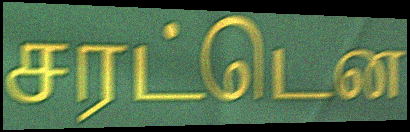
சரட்டென